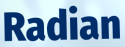
Radian